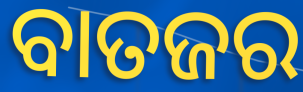
ବାତଜର